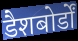
डैशबोर्डों